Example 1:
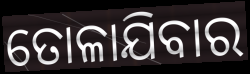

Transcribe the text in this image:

ତୋଳାଯିବାର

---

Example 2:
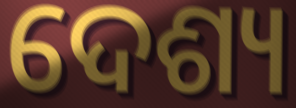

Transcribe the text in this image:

ଦେଶ୍ୟ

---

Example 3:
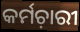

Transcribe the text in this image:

କର୍ମଚ଼ାରୀ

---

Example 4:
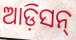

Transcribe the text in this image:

ଆଡ଼ିସନ୍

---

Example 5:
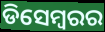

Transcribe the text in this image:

ଡିସେମ୍ୱରର